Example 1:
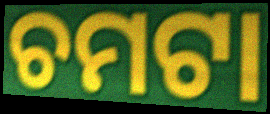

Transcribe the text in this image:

ଚମଟା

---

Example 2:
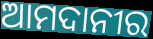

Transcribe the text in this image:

ଆମଦାନୀର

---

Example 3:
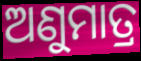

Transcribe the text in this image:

ଅଣୁମାତ୍ର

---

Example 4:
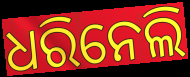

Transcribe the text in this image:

ଧରିନେଲି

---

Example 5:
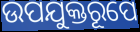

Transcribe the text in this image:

ଉପଯୁକ୍ତରୂପେ